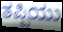
ತಪ್ಪಿಯು